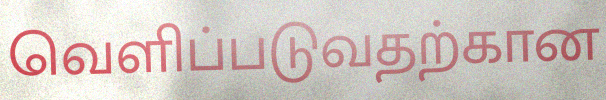
வெளிப்படுவதற்கான